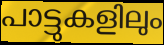
പാട്ടുകളിലും